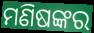
ମଣିଷଙ୍କର